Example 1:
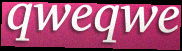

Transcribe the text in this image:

qweqwe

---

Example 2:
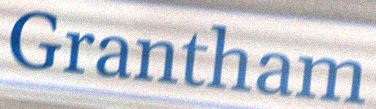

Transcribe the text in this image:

Grantham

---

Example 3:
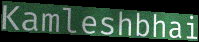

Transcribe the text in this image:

Kamleshbhai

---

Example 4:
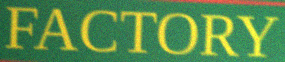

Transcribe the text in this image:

FACTORY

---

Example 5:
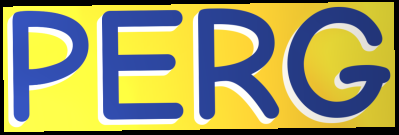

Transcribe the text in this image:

PERG